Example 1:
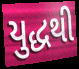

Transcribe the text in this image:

યુદ્ધથી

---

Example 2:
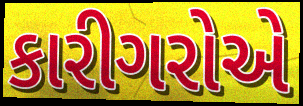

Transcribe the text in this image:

કારીગરોએ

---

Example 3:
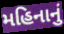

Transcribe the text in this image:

મહિનાનું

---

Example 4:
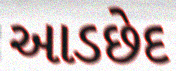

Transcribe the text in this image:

આડછેદ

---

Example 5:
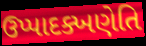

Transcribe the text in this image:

ઉપ્પાદક્ખણેતિ